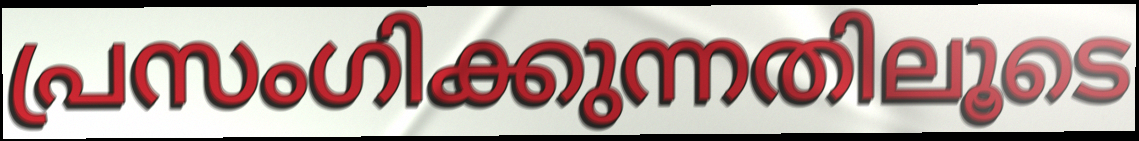
പ്രസംഗിക്കുന്നതിലൂടെ